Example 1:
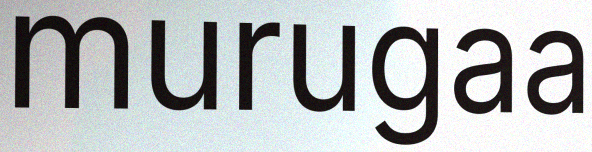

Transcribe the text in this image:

murugaa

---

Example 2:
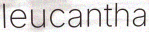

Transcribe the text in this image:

leucantha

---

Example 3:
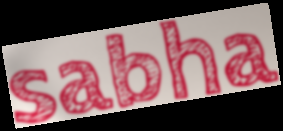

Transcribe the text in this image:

sabha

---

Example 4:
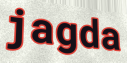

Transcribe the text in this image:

jagda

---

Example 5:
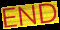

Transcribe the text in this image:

END